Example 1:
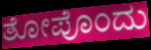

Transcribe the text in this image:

ತೋಪೊಂದು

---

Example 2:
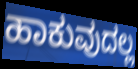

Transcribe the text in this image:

ಹಾಕುವುದಲ್ಲ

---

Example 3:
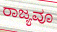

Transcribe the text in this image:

ರಾಜ್ಯವೂ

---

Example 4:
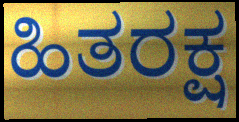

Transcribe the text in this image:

ಹಿತರಕ್ಷ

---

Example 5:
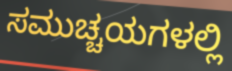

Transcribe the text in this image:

ಸಮುಚ್ಚಯಗಳಲ್ಲಿ